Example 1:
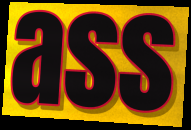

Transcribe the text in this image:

ass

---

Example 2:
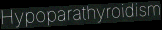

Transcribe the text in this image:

Hypoparathyroidism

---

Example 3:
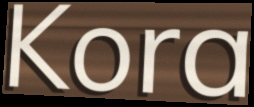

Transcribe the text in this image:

Kora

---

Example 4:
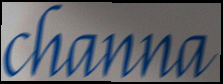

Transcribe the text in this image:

channa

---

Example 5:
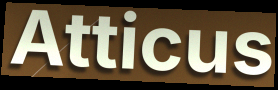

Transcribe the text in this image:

Atticus